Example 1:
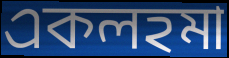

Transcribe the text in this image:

একলহমা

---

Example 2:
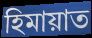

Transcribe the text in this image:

হিমায়াত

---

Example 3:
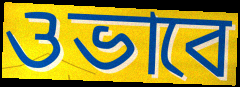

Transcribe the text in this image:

ওভাবে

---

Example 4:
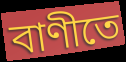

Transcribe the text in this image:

বাণীতে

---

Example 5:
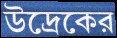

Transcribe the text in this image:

উদ্রেকের